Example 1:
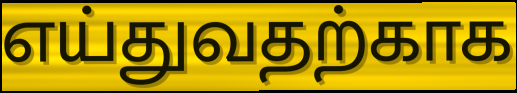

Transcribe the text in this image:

எய்துவதற்காக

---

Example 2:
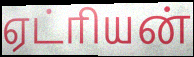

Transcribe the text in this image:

ஏட்ரியன்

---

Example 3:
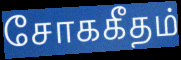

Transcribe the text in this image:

சோககீதம்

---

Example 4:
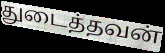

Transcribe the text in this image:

துடைத்தவன்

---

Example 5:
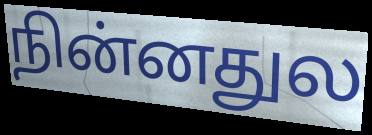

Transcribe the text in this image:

நின்னதுல